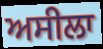
ਅਸੀਲਾ